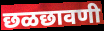
छळछावणी